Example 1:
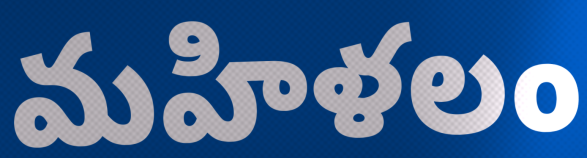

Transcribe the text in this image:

మహిళలం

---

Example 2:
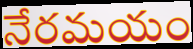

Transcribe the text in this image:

నేరమయం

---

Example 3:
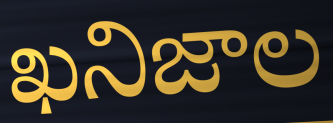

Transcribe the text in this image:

ఖనిజాల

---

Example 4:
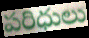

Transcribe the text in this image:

పరిధులు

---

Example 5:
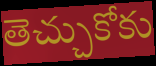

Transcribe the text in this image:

తెచ్చుకోకు